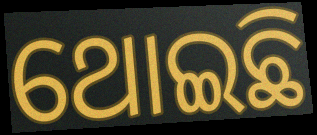
ଥୋଇଛି